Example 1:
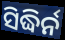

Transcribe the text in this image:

ସିଦ୍ଧିର୍ନ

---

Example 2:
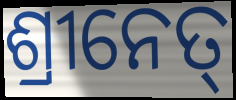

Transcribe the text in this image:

ଶ୍ରୀନେତ୍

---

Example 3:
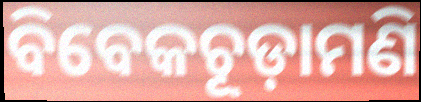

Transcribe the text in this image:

ବିବେକଚୂଡ଼ାମଣି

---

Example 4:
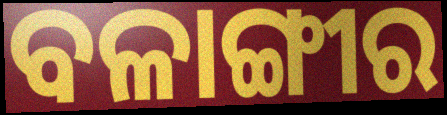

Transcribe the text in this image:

ବଳାଙ୍ଗୀର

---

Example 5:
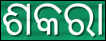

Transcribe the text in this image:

ଶକରା